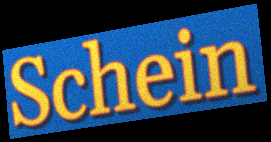
Schein